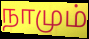
நாமும்